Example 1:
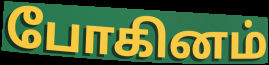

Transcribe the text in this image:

போகினம்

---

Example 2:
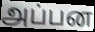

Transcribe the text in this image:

அப்பன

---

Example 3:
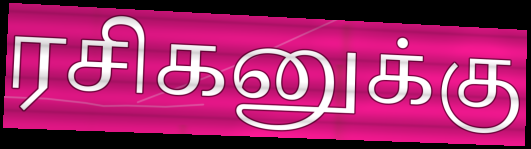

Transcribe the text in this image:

ரசிகனுக்கு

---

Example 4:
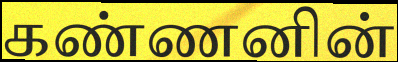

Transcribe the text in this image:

கண்ணனின்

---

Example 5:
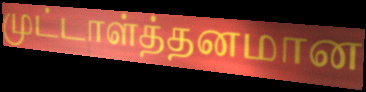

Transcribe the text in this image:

முட்டாள்த்தனமான